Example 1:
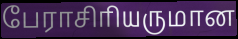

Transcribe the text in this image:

பேராசிரியருமான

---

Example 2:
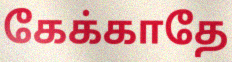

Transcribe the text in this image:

கேக்காதே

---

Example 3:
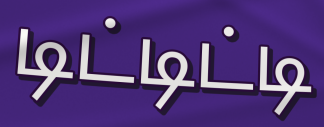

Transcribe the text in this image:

டிட்டிட்டி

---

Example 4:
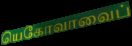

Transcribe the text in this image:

யெகோவாவைப்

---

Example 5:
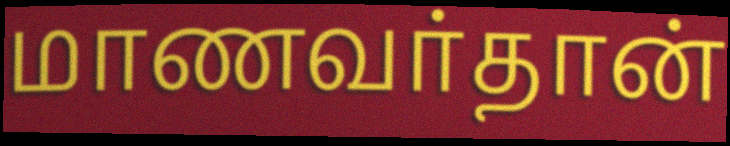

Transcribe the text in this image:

மாணவர்தான்